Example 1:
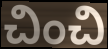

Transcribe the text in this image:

చించి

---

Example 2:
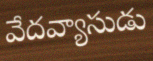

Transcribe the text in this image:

వేదవ్యాసుడు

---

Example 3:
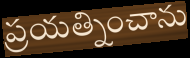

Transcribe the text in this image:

ప్రయత్నించాను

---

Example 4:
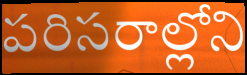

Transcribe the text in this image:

పరిసరాల్లోని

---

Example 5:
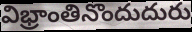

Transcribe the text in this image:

విభ్రాంతినొందుదురు